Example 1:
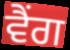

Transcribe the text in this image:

ਵੈਂਗ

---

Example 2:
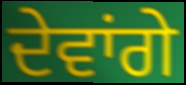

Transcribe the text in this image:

ਦੇਵਾਂਗੇ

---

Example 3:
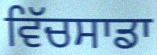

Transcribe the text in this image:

ਵਿੱਚਸਾਡਾ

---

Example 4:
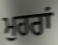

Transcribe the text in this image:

ਮੁਹਰਾਂ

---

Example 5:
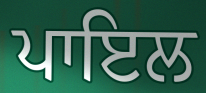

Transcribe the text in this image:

ਪਾਇਲ